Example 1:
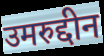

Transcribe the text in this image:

उमरुद्दीन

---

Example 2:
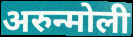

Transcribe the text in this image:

अरुन्मोली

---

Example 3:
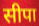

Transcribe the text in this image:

सीपा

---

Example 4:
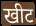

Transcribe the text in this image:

खीट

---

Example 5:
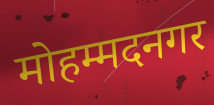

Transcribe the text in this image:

मोहम्मदनगर